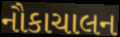
નૌકાચાલન